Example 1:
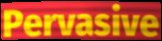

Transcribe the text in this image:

Pervasive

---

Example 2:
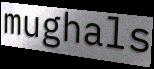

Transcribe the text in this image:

mughals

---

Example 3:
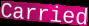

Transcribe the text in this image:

Carried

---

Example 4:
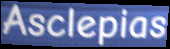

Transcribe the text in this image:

Asclepias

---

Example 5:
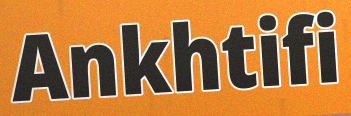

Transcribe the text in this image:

Ankhtifi